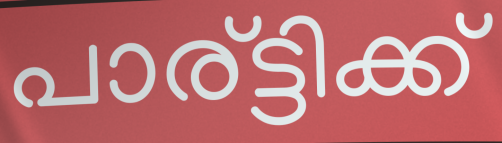
പാര്ട്ടിക്ക്